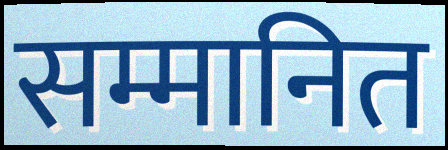
सम्मानित